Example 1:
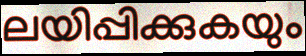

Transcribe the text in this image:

ലയിപ്പിക്കുകയും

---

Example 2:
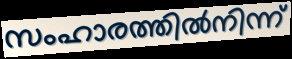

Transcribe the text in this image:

സംഹാരത്തിൽനിന്ന്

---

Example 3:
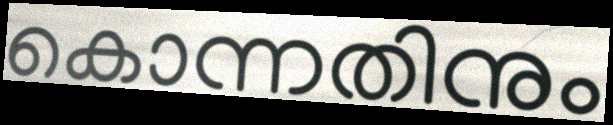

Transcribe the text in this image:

കൊന്നതിനും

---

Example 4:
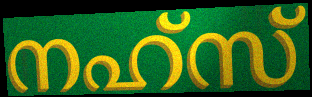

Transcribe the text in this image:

നഹ്സ്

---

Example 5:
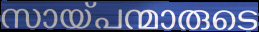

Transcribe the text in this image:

സായ്പന്മാരുടെ